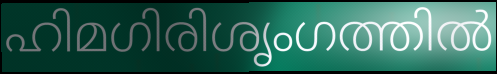
ഹിമഗിരിശൃംഗത്തിൽ